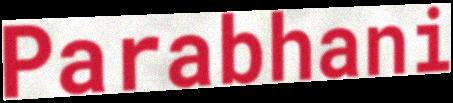
Parabhani